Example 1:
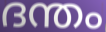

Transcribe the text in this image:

ദന്തം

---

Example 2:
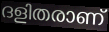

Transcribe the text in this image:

ദളിതരാണ്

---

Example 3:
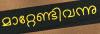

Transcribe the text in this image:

മാറ്റേണ്ടിവന്നു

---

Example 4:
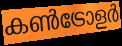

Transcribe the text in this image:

കൺട്രോളർ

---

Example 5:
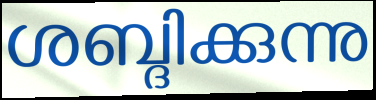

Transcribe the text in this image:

ശബ്ദിക്കുന്നു